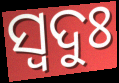
ସ୍ବଦୁଃ